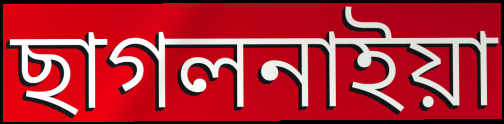
ছাগলনাইয়া